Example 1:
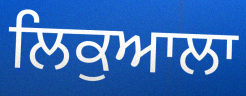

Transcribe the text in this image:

ਲਿਕੁਆਲਾ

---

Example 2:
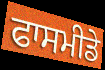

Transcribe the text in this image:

ਫਾਸਮੀਡੇ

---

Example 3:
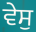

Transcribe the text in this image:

ਵੇਸੁ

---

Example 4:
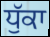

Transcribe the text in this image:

ਧੁੱਕਾ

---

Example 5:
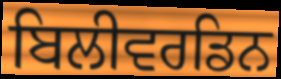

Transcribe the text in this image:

ਬਿਲੀਵਰਡਿਨ